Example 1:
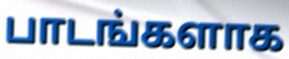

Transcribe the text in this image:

பாடங்களாக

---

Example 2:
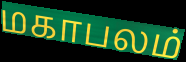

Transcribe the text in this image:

மகாபலம்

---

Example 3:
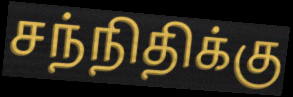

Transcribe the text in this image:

சந்நிதிக்கு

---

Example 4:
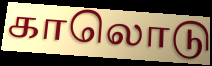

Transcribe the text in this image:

காலொடு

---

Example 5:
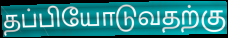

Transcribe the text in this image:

தப்பியோடுவதற்கு